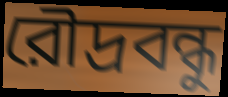
রৌদ্রবন্ধু